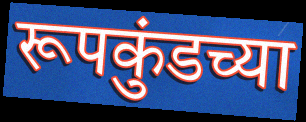
रूपकुंडच्या